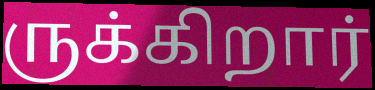
ருக்கிறார்